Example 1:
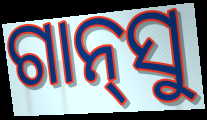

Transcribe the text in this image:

ଗାନ୍‍ସୁ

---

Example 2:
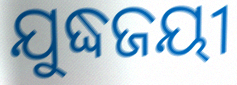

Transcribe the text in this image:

ଯୁଦ୍ଧଜୟୀ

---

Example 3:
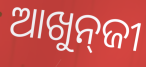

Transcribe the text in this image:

ଆଖୁନ୍‌ଜୀ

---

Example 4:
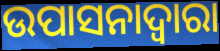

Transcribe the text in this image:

ଉପାସନାଦ୍ଵାରା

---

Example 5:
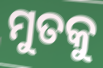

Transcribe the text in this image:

ମୁତକୁ